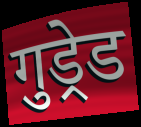
गुड्रेड